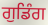
ਗੁਡਿੰਗ